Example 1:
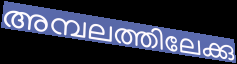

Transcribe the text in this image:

അമ്പലത്തിലേക്കു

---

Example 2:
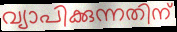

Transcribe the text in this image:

വ്യാപിക്കുന്നതിന്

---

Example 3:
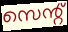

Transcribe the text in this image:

സെന്റ്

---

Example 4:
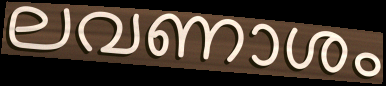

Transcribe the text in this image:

ലവണാശം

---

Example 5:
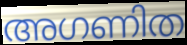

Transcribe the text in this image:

അഗണിത